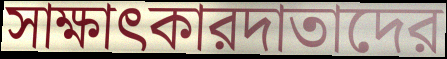
সাক্ষাৎকারদাতাদের